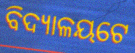
ବିଦ୍ୟାଳୟଟେ